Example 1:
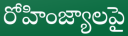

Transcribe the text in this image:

రోహింజ్యాలపై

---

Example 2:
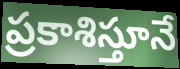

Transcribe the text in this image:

ప్రకాశిస్తూనే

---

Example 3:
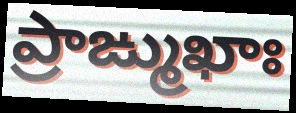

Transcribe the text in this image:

ప్రాఙ్ముఖాః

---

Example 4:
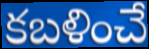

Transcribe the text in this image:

కబళించే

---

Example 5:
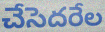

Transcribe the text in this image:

చేసెదరేల